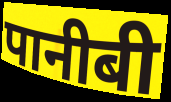
पानीबी